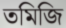
তমিজি